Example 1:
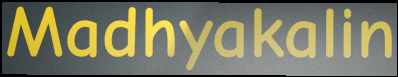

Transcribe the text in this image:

Madhyakalin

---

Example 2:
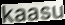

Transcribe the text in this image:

kaasu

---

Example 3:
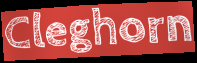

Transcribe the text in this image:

Cleghorn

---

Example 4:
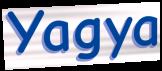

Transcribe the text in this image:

Yagya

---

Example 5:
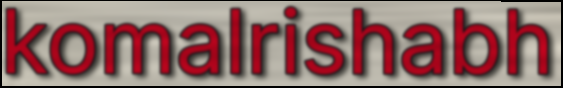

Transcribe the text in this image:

komalrishabh